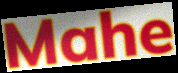
Mahe